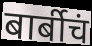
बार्बीचं